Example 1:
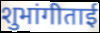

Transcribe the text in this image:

शुभांगीताई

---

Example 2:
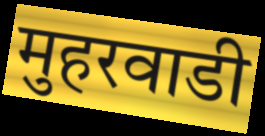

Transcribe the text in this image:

मुहरवाडी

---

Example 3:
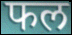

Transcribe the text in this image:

फल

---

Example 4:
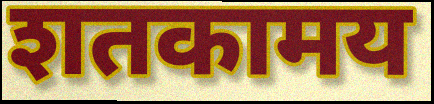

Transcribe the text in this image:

शतकामय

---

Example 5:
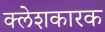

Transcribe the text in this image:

क्लेशकारक